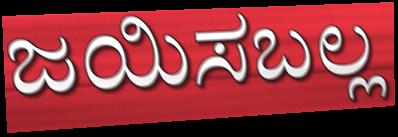
ಜಯಿಸಬಲ್ಲ